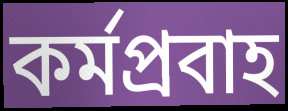
কর্মপ্রবাহ